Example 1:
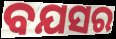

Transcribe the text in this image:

ବଯସର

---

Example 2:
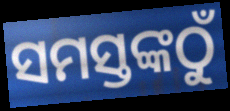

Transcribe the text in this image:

ସମସ୍ତଙ୍କଠୁଁ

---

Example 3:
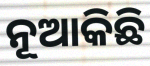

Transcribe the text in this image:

ନୂଆକିଛି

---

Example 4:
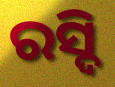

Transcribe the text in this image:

ରସ୍ଦି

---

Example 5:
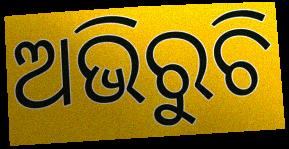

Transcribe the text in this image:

ଅଭିରୁଚି